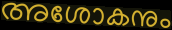
അശോകനും